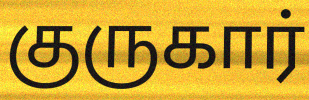
குருகார்